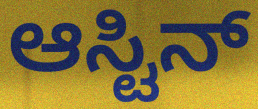
ಆಸ್ಟಿನ್